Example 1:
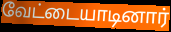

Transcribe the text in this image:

வேட்டையாடினார்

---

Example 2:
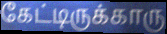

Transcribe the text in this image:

கேட்டிருக்காரு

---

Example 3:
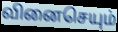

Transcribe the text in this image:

வினைசெயும்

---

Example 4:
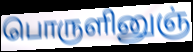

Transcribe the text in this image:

பொருளினுஞ்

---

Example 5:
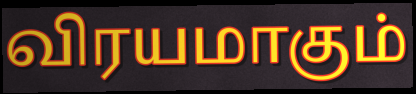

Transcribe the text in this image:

விரயமாகும்